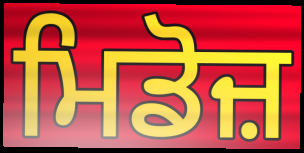
ਮਿਡੋਜ਼